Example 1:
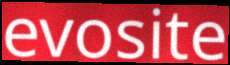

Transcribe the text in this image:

evosite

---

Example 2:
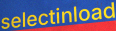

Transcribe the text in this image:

selectinload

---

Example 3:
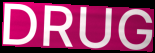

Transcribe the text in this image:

DRUG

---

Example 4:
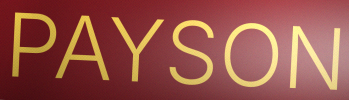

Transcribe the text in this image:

PAYSON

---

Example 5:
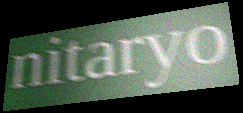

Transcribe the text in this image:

nitaryo